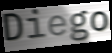
Diego